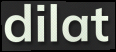
dilat